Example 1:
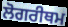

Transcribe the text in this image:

ਲੋਗਰੀਥਮ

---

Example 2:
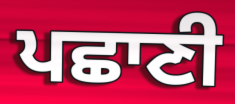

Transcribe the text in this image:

ਪਛਾਣੀ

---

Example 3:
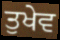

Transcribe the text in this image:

ਤੁਖੇਵ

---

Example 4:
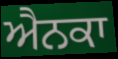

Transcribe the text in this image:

ਐਨਕਾ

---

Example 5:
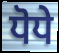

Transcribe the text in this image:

ਧੋਧੇ